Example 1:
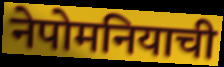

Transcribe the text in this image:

नेपोमनियाची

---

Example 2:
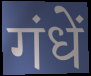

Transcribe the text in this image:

गंधें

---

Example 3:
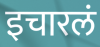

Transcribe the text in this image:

इचारलं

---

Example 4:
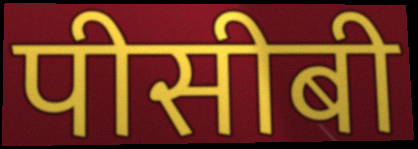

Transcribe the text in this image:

पीसीबी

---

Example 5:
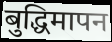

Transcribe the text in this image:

बुद्धिमापन